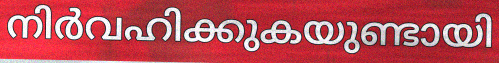
നിർവഹിക്കുകയുണ്ടായി